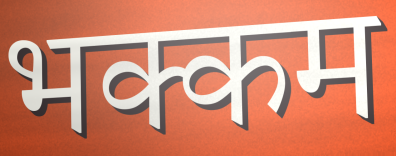
भक्‍कम